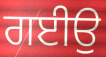
ਗਈਉ